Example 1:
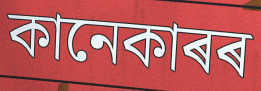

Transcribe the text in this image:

কানেকাৰৰ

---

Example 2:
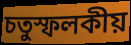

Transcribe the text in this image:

চতুস্ফলকীয়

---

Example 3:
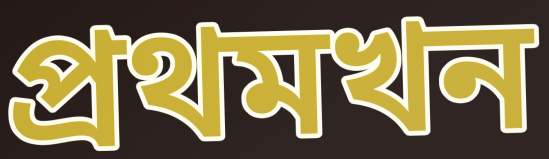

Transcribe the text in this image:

প্ৰথমখন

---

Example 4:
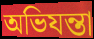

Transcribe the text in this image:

অভিযন্তা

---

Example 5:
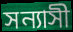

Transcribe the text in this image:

সন্যাসী